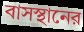
বাসস্থানের